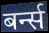
बर्न्स